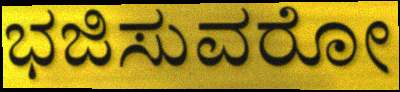
ಭಜಿಸುವರೋ